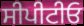
ਸੀਪੀਟੀਓ